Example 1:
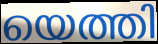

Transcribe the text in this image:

യെത്തി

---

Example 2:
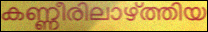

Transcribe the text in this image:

കണ്ണീരിലാഴ്ത്തിയ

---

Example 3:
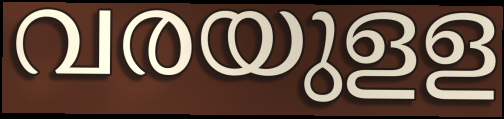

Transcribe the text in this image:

വരയുളള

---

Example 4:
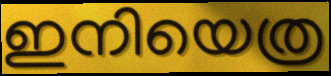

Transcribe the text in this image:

ഇനിയെത്ര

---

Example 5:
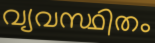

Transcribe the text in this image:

വ്യവസ്ഥിതം